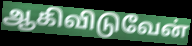
ஆகிவிடுவேன்